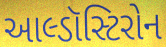
આલ્ડૉસ્ટિરોન